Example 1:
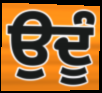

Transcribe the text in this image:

ਉਦੂੰ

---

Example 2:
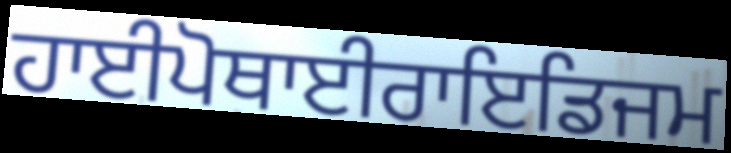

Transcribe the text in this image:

ਹਾਈਪੋਥਾਈਰਾਇਡਿਜਮ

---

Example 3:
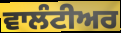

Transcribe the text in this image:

ਵਾਲੰਟੀਅਰ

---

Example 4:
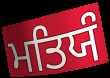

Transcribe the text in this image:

ਮਤਿਯੰ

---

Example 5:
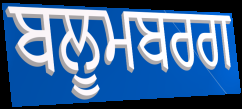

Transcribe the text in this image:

ਬਲੂਮਬਰਗ